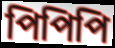
পিপিপি